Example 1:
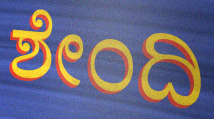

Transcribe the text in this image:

ಶೇಂದಿ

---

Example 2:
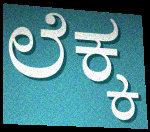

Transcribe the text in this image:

ಲೆಕ್ಕ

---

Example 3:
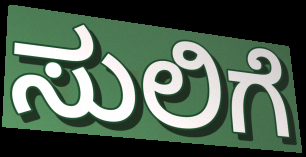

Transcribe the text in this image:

ಸುಲಿಗೆ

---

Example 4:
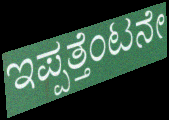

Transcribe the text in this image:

ಇಪ್ಪತ್ತೆಂಟನೇ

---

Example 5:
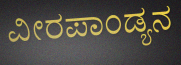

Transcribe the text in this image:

ವೀರಪಾಂಡ್ಯನ